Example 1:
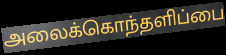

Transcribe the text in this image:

அலைக்கொந்தளிப்பை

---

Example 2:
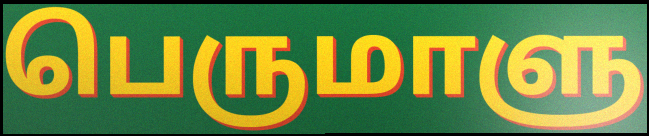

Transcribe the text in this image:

பெருமாளு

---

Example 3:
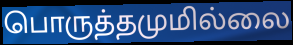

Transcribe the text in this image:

பொருத்தமுமில்லை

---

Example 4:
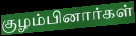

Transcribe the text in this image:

குழம்பினார்கள்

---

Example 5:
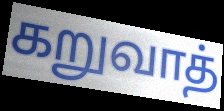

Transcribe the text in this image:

கறுவாத்